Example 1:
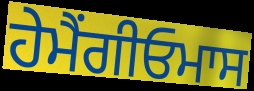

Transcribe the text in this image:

ਹੇਮੈਂਗੀਓਮਾਸ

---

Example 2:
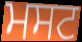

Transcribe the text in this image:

ਮਸਟ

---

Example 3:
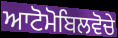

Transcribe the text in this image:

ਆਟੋਮੋਬਿਲਵੋਚੇ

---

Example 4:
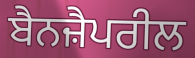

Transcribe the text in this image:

ਬੈਨਜ਼ੈਪਰੀਲ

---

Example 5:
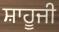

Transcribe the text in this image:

ਸ਼ਾਹੂਜੀ